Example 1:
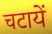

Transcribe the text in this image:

चटायें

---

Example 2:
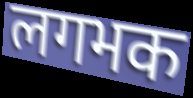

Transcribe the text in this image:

लगभक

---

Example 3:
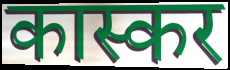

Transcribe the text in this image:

कास्कर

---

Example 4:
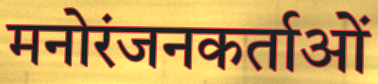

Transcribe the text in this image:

मनोरंजनकर्ताओं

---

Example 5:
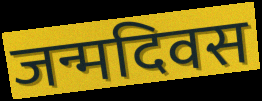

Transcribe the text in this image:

जन्मदिवस